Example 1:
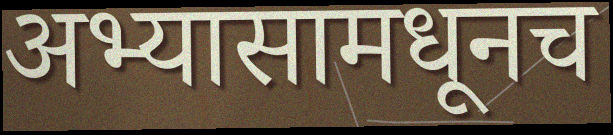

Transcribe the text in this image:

अभ्यासामधूनच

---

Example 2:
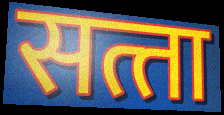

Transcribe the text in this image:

सत्‍ता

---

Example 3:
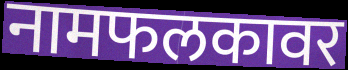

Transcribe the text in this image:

नामफलकावर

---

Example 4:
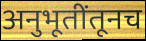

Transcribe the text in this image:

अनुभूतींतूनच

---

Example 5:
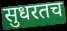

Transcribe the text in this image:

सुधरतच